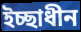
ইচ্ছাধীন